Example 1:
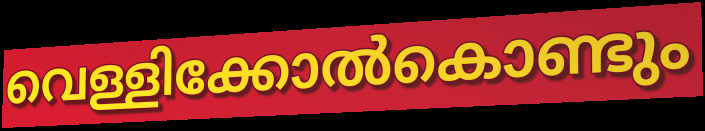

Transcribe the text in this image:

വെള്ളിക്കോൽകൊണ്ടും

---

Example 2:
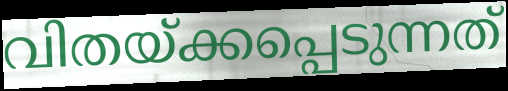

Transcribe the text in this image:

വിതയ്ക്കപ്പെടുന്നത്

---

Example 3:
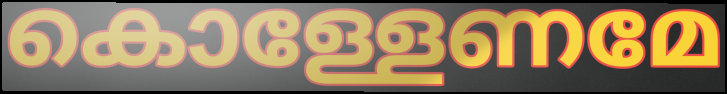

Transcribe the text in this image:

കൊള്ളേണമേ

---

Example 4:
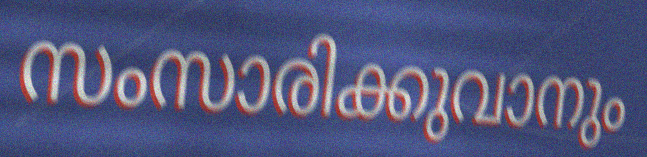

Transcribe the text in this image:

സംസാരിക്കുവാനും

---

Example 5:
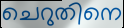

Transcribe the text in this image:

ചെറുതിനെ